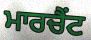
ਮਾਰਚੈਂਟ